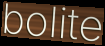
bolite